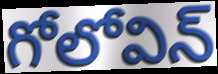
గోలోవిన్